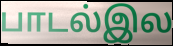
பாடல்இல